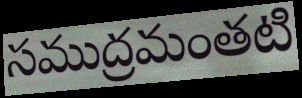
సముద్రమంతటి